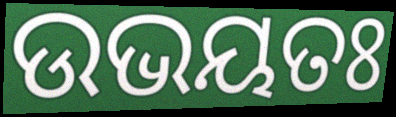
ଉଭୟତଃ